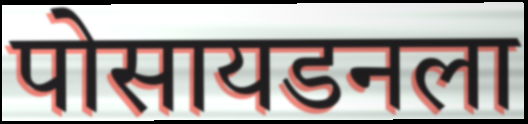
पोसायडनला